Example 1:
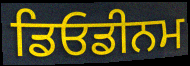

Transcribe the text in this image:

ਡਿਓਡੀਨਮ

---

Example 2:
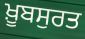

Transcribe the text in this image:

ਖ਼ੂਬਸੁਰਤ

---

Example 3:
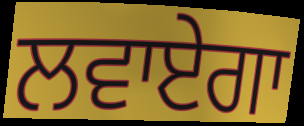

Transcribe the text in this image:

ਲਵਾਏਗਾ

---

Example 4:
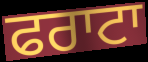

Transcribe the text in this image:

ਫਰਾਟਾ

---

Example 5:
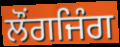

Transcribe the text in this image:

ਲੌਂਗਜਿੰਗ